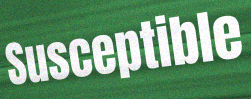
Susceptible